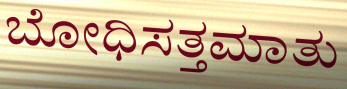
ಬೋಧಿಸತ್ತಮಾತು